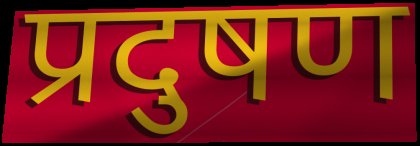
प्रदुषण